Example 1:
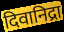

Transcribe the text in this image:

दिवानिद्रा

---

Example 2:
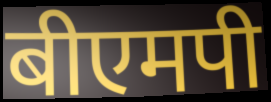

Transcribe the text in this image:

बीएमपी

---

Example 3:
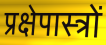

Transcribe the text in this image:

प्रक्षेपास्त्रों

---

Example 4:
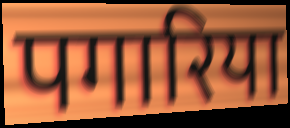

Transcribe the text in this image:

पगारिया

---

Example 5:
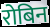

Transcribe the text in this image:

रोबिन